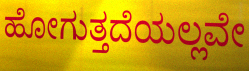
ಹೋಗುತ್ತದೆಯಲ್ಲವೇ